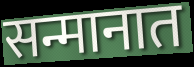
सन्मानात